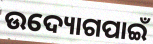
ଉଦ୍ୟୋଗପାଇଁ